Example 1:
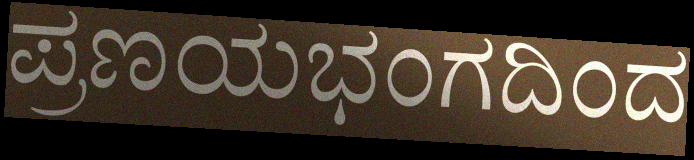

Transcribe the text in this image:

ಪ್ರಣಯಭಂಗದಿಂದ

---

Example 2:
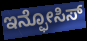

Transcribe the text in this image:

ಇನ್ಫೋಸಿಸ್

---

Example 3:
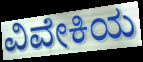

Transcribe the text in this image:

ವಿವೇಕಿಯ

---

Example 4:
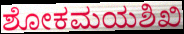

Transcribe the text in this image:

ಶೋಕಮಯಶಿಖಿ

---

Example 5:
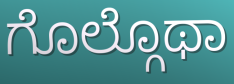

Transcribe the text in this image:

ಗೊಲ್ಗೊಥಾ